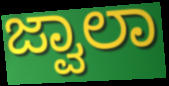
ಜ್ವಾಲಾ